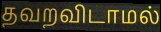
தவறவிடாமல்